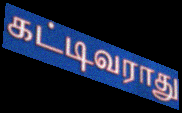
கட்டிவராது